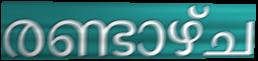
രണ്ടാഴ്ച